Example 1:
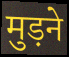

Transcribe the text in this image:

मुड़ने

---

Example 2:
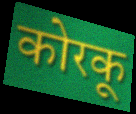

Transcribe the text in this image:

कोरकू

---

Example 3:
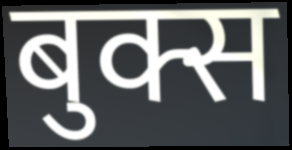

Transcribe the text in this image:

बुक्स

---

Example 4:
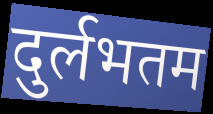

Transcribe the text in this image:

दुर्लभतम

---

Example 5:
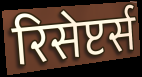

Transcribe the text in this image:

रिसेप्टर्स